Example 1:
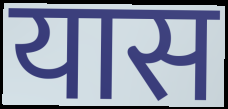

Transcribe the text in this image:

यास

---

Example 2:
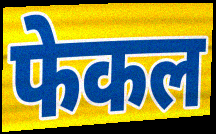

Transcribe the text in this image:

फेकल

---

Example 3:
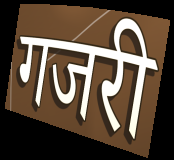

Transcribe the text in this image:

गजरी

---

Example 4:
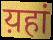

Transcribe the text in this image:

य़हां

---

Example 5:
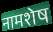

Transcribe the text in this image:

नामशेष